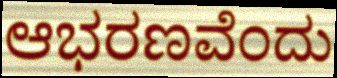
ಆಭರಣವೆಂದು